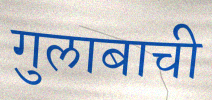
गुलाबाची